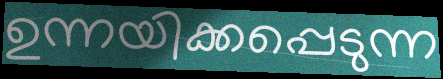
ഉന്നയിക്കപ്പെടുന്ന